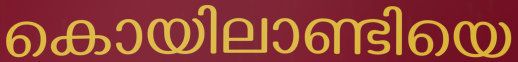
കൊയിലാണ്ടിയെ